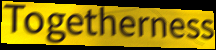
Togetherness